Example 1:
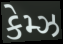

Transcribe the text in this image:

કેમ્ઝ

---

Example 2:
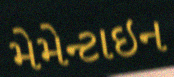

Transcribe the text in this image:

મેમેન્ટાઇન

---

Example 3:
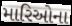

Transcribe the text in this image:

મારિઓના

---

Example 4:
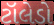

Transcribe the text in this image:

ટૉલેડો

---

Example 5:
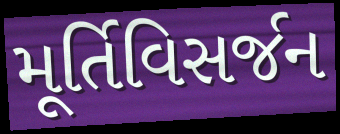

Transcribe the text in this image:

મૂર્તિવિસર્જન